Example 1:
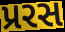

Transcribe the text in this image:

પ્રરસ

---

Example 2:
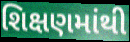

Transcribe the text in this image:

શિક્ષણમાંથી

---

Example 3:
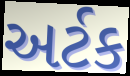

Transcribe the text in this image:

અર્ટક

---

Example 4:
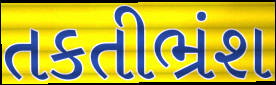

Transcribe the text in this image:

તકતીભ્રંશ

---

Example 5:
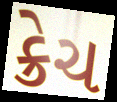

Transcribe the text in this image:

ક્રેચ